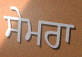
ਸੇਮਰਾ